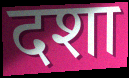
दशा